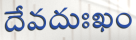
దేవదుఃఖం